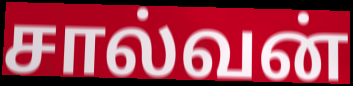
சால்வன்